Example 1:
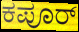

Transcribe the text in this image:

ಕಪೂರ್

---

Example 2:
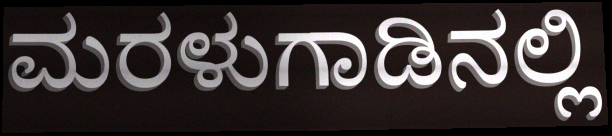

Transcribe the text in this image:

ಮರಳುಗಾಡಿನಲ್ಲಿ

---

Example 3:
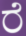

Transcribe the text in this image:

ರೆ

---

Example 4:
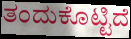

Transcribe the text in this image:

ತಂದುಕೊಟ್ಟಿದೆ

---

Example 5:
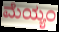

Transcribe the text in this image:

ಮೆಯ್ಯಂ